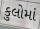
કુલોમાં